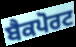
ਬੈਕਪੋਰਟ